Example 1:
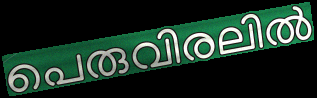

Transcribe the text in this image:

പെരുവിരലിൽ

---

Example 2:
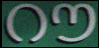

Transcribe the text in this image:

റൗ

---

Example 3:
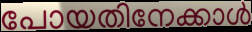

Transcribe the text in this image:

പോയതിനേക്കാൾ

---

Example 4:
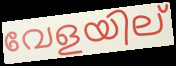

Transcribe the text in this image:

വേളയില്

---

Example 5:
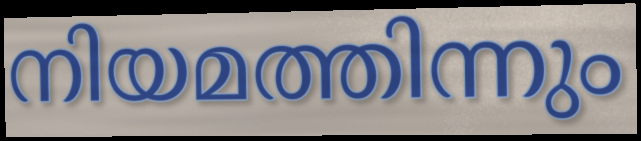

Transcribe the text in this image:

നിയമത്തിന്നും